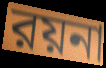
রয়না